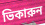
ভিকারুন